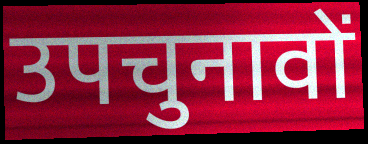
उपचुनावों